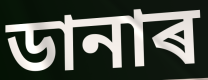
ডানাৰ